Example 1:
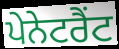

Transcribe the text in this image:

ਪੇਨੇਟਰੈਂਟ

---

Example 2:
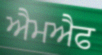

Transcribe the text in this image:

ਐਮਐਫ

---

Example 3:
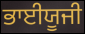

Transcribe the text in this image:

ਭਾਈਯੂਜੀ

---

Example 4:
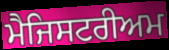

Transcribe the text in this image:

ਮੈਜਿਸਟਰੀਅਮ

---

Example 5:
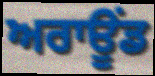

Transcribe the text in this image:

ਅਰਾਊਂਡ